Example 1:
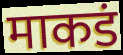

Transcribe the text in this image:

माकडं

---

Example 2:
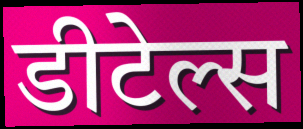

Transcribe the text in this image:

डीटेल्स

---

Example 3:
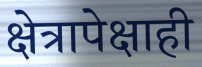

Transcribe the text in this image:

क्षेत्रापेक्षाही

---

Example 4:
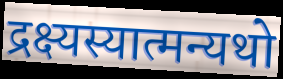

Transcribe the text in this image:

द्रक्ष्यस्यात्मन्यथो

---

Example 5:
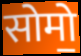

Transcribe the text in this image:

सोमो॒